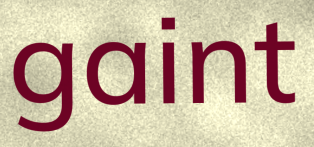
gaint